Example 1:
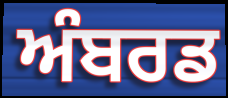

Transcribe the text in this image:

ਅੰਬਰਡ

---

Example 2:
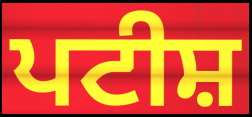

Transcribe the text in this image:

ਪਟੀਸ਼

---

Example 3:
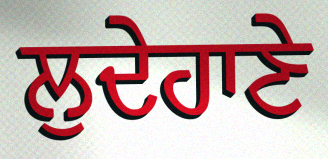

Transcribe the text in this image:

ਲੁਦੇਹਾਣੇ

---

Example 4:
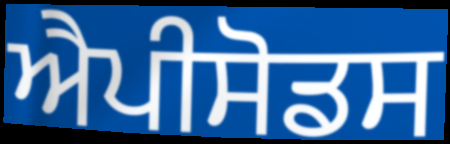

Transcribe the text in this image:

ਐਪੀਸੋਡਸ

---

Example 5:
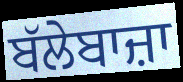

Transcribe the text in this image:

ਬੱਲੇਬਾਜ਼ਾ